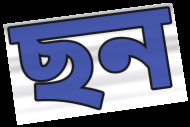
ছন